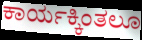
ಕಾರ್ಯಕ್ಕಿಂತಲೂ